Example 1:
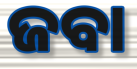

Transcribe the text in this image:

ଜବା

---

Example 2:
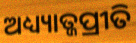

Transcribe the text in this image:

ଅଧ୍ୟ୍ୟାତ୍ଜପ୍ରୀତି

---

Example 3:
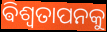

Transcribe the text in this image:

ଵିଶ୍ଵତାପନକୁ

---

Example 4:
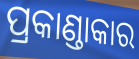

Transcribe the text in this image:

ପ୍ରକାଣ୍ଡାକାର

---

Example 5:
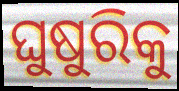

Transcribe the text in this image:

ଘୁଷୁରିକୁ